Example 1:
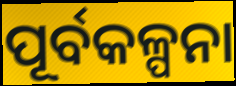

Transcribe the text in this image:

ପୂର୍ବକଳ୍ପନା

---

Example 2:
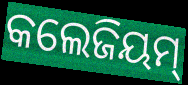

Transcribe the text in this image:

କଲେଜିୟମ୍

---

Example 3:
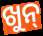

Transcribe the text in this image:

ଖୁନ୍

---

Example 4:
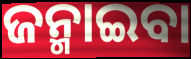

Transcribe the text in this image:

ଜନ୍ମାଇବା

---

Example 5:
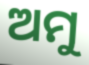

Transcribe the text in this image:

ଅମୁ